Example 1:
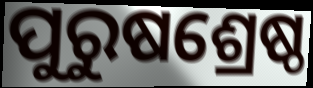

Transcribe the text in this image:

ପୁରୁଷଶ୍ରେଷ୍ଠ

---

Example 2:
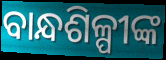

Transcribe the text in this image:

ବାନ୍ଧଶିଳ୍ପୀଙ୍କ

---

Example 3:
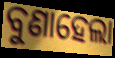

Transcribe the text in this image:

ବୁଣାହେଲା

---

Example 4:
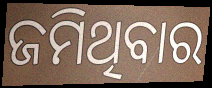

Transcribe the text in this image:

ଜମିଥିବାର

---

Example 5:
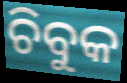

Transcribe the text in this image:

ଚିବୁକ